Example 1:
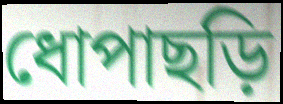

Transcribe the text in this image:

ধোপাছড়ি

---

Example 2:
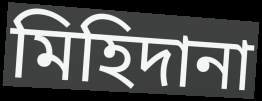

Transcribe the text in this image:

মিহিদানা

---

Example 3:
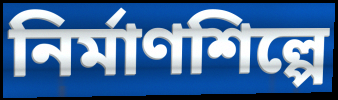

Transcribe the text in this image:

নির্মাণশিল্পে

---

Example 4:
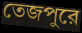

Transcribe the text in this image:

তেজপুরে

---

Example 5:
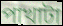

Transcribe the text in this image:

পাখাটা